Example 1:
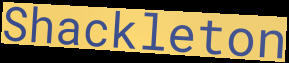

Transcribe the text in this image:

Shackleton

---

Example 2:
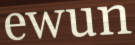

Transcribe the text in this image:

ewun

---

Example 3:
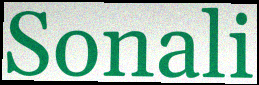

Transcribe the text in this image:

Sonali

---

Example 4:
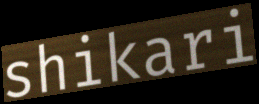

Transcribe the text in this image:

shikari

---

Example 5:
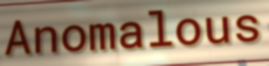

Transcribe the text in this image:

Anomalous